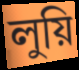
লুয়ি